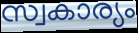
സ്വകാര്യം